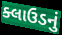
ક્લાઉડનું